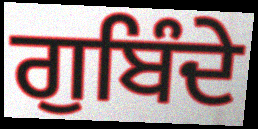
ਗੁਬਿੰਦੇ